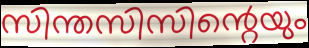
സിന്തസിസിന്റെയും